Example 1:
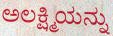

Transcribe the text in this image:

ಅಲಕ್ಷ್ಮಿಯನ್ನು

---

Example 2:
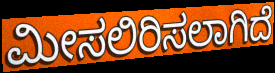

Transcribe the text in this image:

ಮೀಸಲಿರಿಸಲಾಗಿದೆ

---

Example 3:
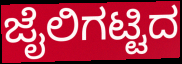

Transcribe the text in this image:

ಜೈಲಿಗಟ್ಟಿದ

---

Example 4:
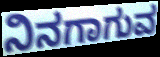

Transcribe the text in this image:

ನಿನಗಾಗುವ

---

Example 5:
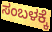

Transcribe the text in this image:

ಸಂಬಳಕ್ಕೆ